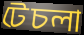
টেচলা